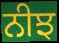
ਨੀਝ